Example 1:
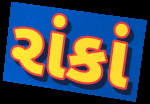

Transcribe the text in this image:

રાંકાં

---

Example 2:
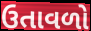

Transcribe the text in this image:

ઉતાવળો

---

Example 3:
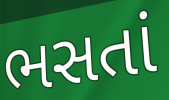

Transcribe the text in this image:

ભસતાં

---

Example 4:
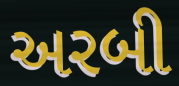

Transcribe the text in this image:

અરબી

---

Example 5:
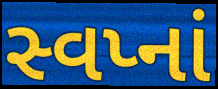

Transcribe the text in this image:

સ્વપ્નાં